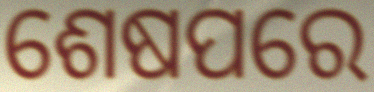
ଶେଷପରେ